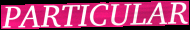
PARTICULAR